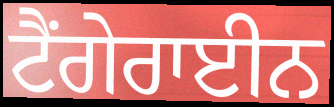
ਟੈਂਗੇਰਾਈਨ